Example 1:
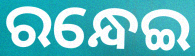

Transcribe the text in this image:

ରନ୍ଧେଇ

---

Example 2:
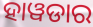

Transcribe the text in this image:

ହାୱଡାର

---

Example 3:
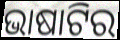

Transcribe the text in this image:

ଭାଷାଟିର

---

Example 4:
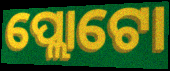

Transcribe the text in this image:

ପ୍ଲୋଟୋ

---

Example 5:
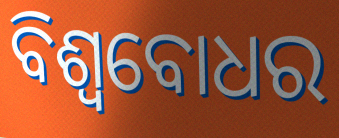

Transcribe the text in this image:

ବିଶ୍ବବୋଧର